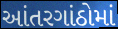
આંતરગાંઠોમાં